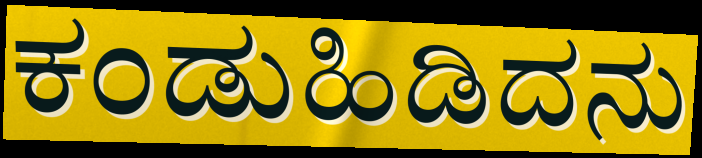
ಕಂಡುಹಿಡಿದನು